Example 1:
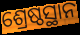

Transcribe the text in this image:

ଶ୍ରେଷ୍ଠସ୍ଥାନ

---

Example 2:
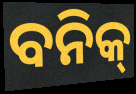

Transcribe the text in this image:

ବନିକ୍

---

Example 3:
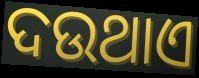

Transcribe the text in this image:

ଦଉଥାଏ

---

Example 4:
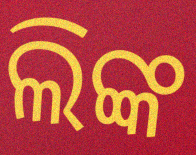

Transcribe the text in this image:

ଲିଙ୍କ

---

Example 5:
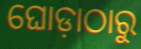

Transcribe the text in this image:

ଘୋଡ଼ାଠାରୁ